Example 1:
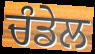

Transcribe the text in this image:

ਚੰਡੇਲ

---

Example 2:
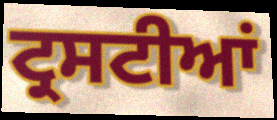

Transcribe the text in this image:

ਟ੍ਰਸਟੀਆਂ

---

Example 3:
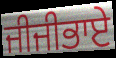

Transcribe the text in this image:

ਜੀਜੀਭਾਏ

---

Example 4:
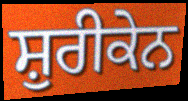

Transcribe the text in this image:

ਸ਼ੁਰੀਕੇਨ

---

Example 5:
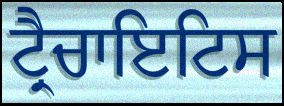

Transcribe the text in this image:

ਟ੍ਰੈਚਾਇਟਿਸ